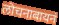
लोचनाबायनं